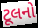
ટૂલનો